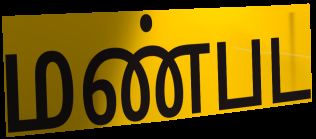
மண்பட